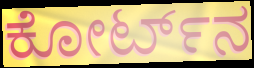
ಕೋರ್ಟ್‍ನ